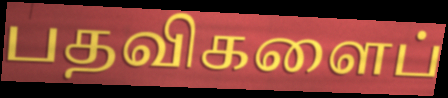
பதவிகளைப்